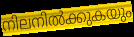
നിലനിൽക്കുകയും